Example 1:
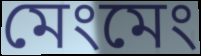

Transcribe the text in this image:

মেংমেং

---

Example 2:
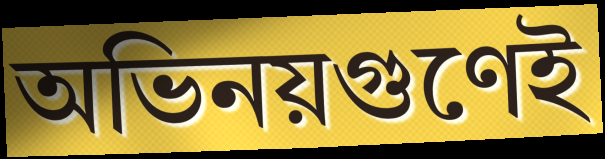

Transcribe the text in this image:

অভিনয়গুণেই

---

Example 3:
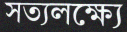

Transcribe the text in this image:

সত্যলক্ষ্যে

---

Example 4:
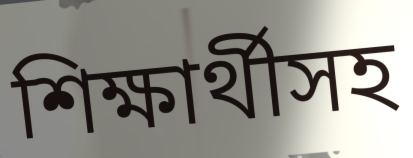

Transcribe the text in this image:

শিক্ষার্থীসহ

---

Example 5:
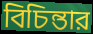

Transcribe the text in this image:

বিচিন্তার